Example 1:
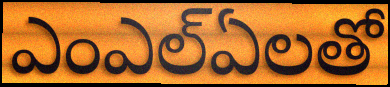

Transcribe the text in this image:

ఎంఎల్ఏలతో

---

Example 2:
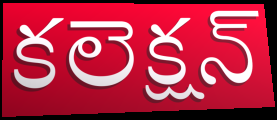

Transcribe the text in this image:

కలెక్షన్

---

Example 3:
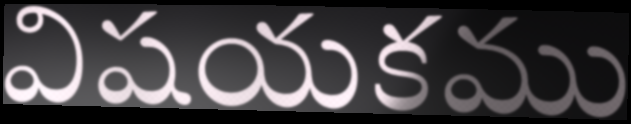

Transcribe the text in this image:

విషయకము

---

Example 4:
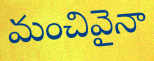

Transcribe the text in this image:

మంచివైనా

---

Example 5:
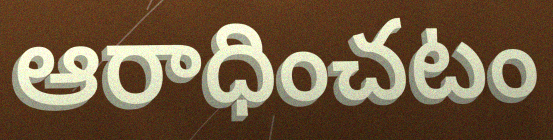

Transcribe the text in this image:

ఆరాధించటం